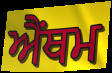
ਐਂਥਮ